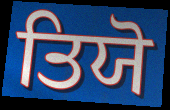
ਤਿਯੋ